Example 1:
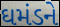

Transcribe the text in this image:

ઘમંડને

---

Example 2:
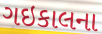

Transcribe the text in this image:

ગઇકાલના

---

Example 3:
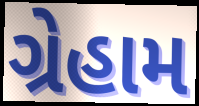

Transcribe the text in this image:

ગ્રેહામ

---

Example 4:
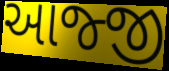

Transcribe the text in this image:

આજ્જી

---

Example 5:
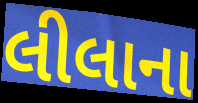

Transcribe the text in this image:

લીલાના